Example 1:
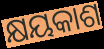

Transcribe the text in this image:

କ୍ଷୟକାଶ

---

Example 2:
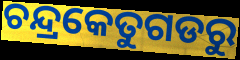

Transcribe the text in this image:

ଚନ୍ଦ୍ରକେତୁଗଡରୁ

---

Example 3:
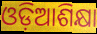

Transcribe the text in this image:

ଓଡ଼ିଆଶିକ୍ଷା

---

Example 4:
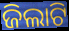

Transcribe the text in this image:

ଜିଲାଟି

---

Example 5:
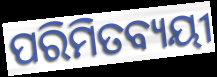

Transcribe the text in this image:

ପରିମିତବ୍ୟୟୀ